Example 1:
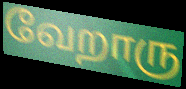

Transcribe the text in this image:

வேறாரு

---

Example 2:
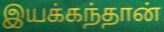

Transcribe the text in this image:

இயக்கந்தான்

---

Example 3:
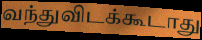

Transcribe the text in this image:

வந்துவிடக்கூடாது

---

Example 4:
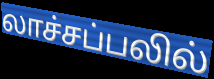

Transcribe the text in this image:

லாச்சப்பலில்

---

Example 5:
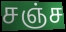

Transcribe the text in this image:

சஞ்ச